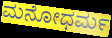
ಮನೋಧರ್ಮ